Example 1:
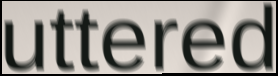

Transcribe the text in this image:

uttered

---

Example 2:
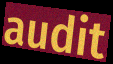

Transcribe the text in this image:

audit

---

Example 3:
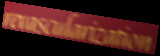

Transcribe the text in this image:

revascularization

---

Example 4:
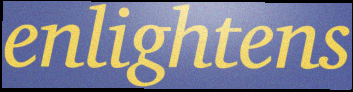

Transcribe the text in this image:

enlightens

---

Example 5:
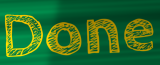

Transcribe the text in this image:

Done